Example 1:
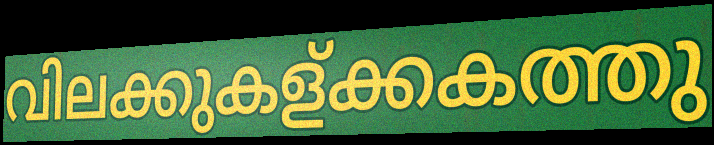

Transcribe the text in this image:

വിലക്കുകള്ക്കകത്തു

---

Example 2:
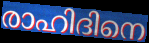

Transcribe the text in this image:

രാഹിദിനെ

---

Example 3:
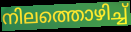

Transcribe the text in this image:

നിലത്തൊഴിച്ച്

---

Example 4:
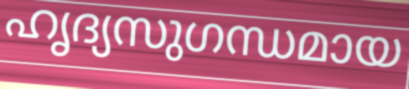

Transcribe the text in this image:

ഹൃദ്യസുഗന്ധമായ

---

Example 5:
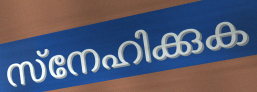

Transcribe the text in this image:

സ്‌നേഹിക്കുക